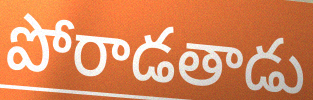
పోరాడతాడు